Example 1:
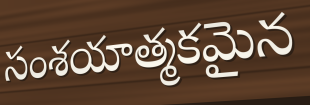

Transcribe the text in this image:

సంశయాత్మకమైన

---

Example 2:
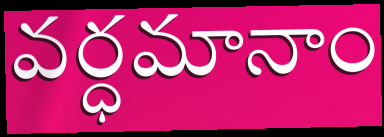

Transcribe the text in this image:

వర్ధమానాం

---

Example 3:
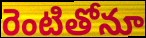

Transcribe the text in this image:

రెంటితోనూ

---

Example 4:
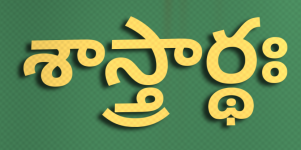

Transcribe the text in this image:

శాస్త్రార్థః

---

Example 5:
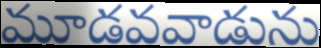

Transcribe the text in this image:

మూడవవాడును